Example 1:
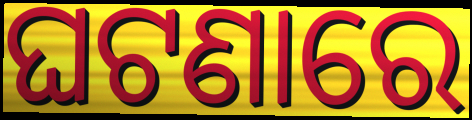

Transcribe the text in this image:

ଘଟଣାରେ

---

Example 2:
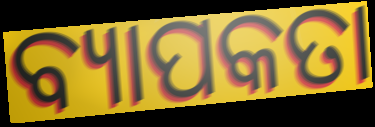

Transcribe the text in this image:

ବ୍ୟାପକତା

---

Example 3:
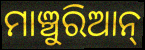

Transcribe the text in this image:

ମାଞ୍ଚୁରିଆନ୍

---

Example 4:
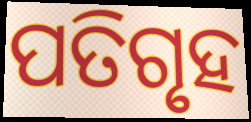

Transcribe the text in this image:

ପତିଗୃହ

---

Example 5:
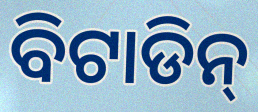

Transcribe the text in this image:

ବିଟାଡିନ୍